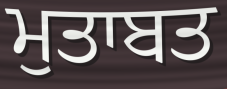
ਮੁਤਾਬਤ